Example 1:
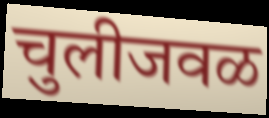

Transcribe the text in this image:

चुलीजवळ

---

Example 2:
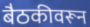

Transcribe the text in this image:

बैठकीवरून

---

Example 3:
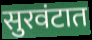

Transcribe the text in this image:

सुरवंटात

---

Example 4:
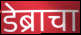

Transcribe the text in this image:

डेब्राचा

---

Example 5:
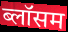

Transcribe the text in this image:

ब्लॉसम